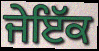
ਜੇਇੱਕ